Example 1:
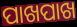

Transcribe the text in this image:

ପାଖପାଖ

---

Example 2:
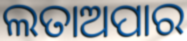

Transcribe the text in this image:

ଲତାଅପାର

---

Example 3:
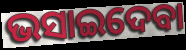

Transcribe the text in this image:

ଭସାଇଦେବା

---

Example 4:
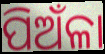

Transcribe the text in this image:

ପିଅଁଳା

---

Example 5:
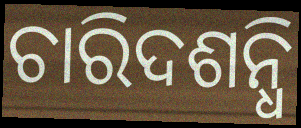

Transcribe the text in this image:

ଚାରିଦଶନ୍ଧି